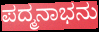
ಪದ್ಮನಾಭನು